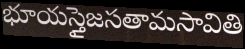
భూయస్తైజసతామసావితి